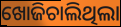
ଖୋଜିଚାଲିଥିଲା